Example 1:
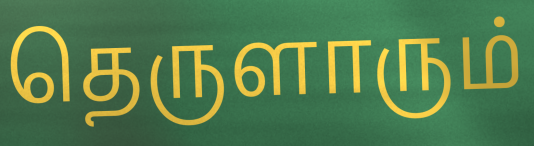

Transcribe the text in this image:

தெருளாரும்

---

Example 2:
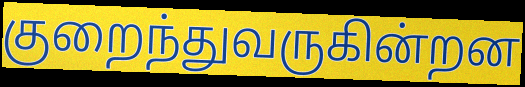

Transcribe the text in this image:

குறைந்துவருகின்றன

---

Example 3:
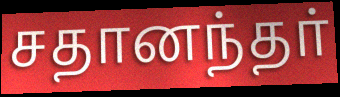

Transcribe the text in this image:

சதானந்தர்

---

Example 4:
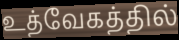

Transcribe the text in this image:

உத்வேகத்தில்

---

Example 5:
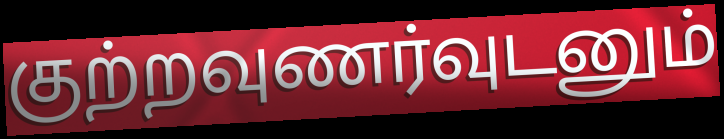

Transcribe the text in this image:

குற்றவுணர்வுடனும்